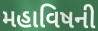
મહાવિષની